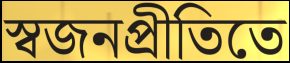
স্বজনপ্রীতিতে